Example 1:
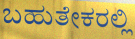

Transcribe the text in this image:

ಬಹುತೇಕರಲ್ಲಿ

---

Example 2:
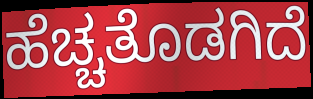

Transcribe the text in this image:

ಹೆಚ್ಚತೊಡಗಿದೆ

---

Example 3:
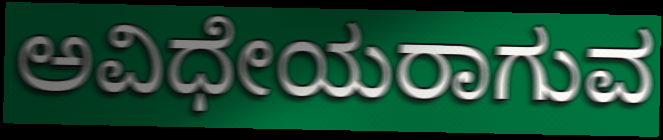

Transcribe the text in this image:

ಅವಿಧೇಯರಾಗುವ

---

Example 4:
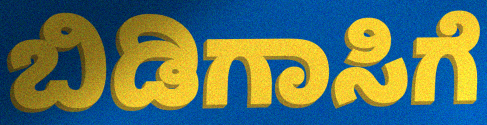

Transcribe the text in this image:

ಬಿಡಿಗಾಸಿಗೆ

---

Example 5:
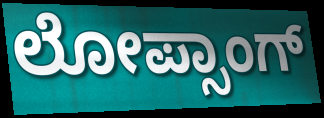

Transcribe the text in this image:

ಲೋಪ್ಸಾಂಗ್